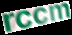
rccm